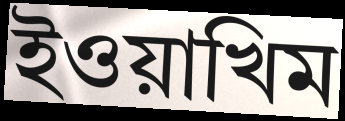
ইওয়াখিম